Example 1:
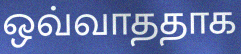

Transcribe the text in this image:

ஒவ்வாததாக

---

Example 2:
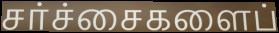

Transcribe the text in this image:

சர்ச்சைகளைப்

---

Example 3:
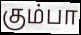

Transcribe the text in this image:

கும்பா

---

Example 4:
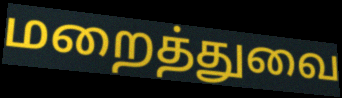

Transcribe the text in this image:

மறைத்துவை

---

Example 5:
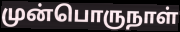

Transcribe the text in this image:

முன்பொருநாள்